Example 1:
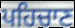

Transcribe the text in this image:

ਪਹਿਚਾਣ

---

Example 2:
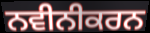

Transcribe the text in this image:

ਨਵੀਨੀਕਰਨ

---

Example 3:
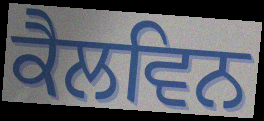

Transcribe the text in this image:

ਕੈਲਵਿਨ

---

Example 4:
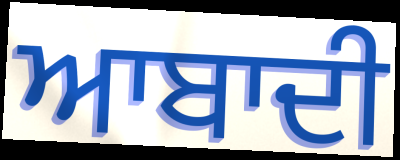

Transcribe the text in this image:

ਆਬਾਦੀ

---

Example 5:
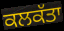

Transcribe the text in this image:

ਕਲਕੱਤਾ